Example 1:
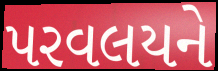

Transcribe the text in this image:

પરવલયને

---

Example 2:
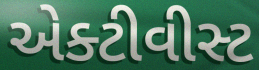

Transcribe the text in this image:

એક્ટીવીસ્ટ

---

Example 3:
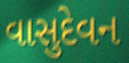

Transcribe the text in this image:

વાસુદેવન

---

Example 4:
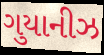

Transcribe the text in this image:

ગુયાનીઝ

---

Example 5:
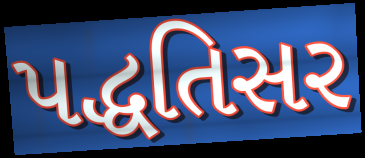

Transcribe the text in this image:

પદ્ધતિસર